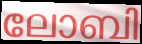
ലോബി